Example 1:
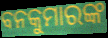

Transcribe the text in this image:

ବନକୁମାରଙ୍କ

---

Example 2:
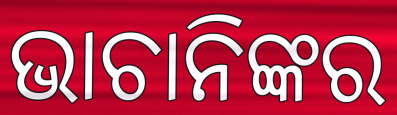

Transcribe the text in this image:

ଭାଚାନିଙ୍କର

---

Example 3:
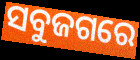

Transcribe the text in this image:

ସବୁଜଗରେ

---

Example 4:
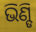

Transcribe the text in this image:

ଭିଣ୍ଡି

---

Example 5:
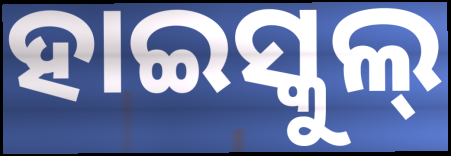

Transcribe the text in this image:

ହାଇସ୍କୁଲ୍